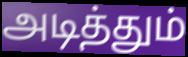
அடித்தும்